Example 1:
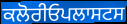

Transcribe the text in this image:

ਕਲੋਰੀਓਪਲਾਸਟਸ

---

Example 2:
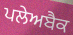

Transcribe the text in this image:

ਪਲੇਅਬੈਕ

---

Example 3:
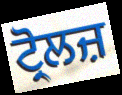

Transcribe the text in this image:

ਟ੍ਰੋਲਜ਼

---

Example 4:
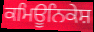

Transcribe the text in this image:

ਕਮਿਊਨਿਕੇਸ਼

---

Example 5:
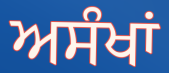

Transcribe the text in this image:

ਅਸੰਖਾਂ